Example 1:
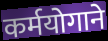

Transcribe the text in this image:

कर्मयोगाने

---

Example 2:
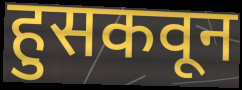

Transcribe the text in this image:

हुसकवून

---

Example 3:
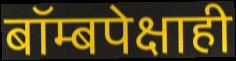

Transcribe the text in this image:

बॉम्बपेक्षाही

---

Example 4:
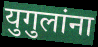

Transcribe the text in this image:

युगुलांना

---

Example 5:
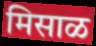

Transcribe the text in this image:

मिसाळ